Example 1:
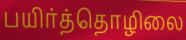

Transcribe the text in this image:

பயிர்த்தொழிலை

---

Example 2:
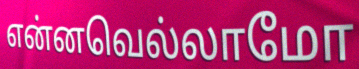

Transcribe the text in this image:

என்னவெல்லாமோ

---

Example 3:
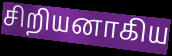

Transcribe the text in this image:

சிறியனாகிய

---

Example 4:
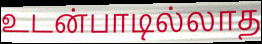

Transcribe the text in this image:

உடன்பாடில்லாத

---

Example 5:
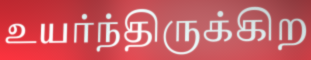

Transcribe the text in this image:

உயர்ந்திருக்கிற